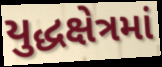
યુદ્ધક્ષેત્રમાં